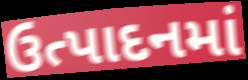
ઉત્પાદનમાં